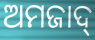
ଅମଜାଦ୍